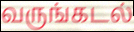
வருங்கடல்